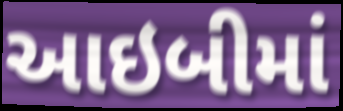
આઇબીમાં